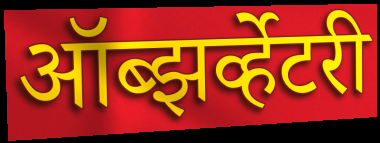
ऑब्झर्व्हेटरी